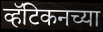
व्हॅटिकनच्या